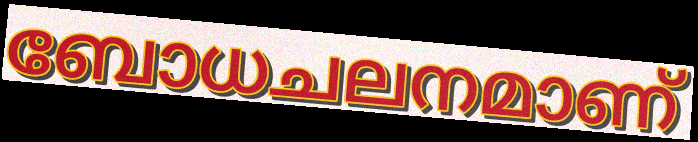
ബോധചലനമാണ്